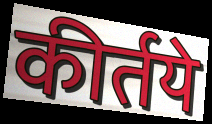
कीर्तये